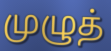
முழுத்